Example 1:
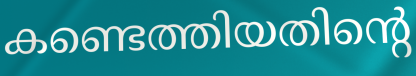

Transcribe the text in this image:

കണ്ടെത്തിയതിന്റെ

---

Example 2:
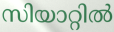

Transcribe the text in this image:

സിയാറ്റിൽ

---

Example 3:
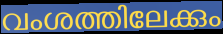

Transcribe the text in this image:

വംശത്തിലേക്കും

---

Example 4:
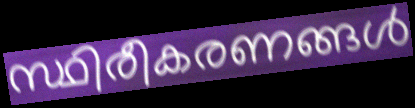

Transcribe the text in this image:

സ്ഥിരീകരണങ്ങൾ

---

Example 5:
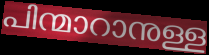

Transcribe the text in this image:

പിന്മാറാനുള്ള